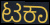
ಟಕಾ